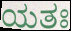
ಯತಃ